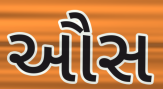
ઔસ